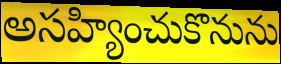
అసహ్యించుకొనును